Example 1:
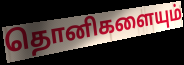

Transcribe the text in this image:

தொனிகளையும்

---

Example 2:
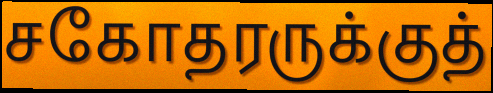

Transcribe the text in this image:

சகோதரருக்குத்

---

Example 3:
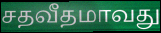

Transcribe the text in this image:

சதவீதமாவது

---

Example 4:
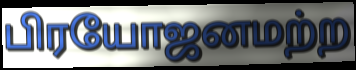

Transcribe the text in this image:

பிரயோஜனமற்ற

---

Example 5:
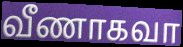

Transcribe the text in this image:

வீணாகவா